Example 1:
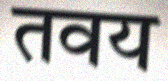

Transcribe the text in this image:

तवय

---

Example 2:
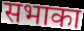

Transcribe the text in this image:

सभाका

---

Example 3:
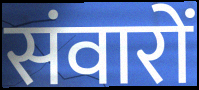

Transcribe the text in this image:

संवारों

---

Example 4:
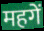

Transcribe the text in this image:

महगें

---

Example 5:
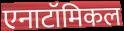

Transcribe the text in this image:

एनाटॉमिकल